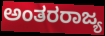
ಅಂತರರಾಜ್ಯ